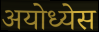
अयोध्येस